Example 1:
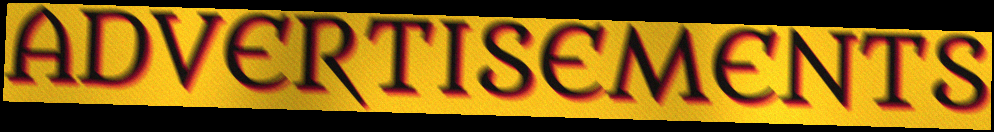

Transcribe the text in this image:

ADVERTISEMENTS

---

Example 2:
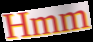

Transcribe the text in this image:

Hmm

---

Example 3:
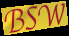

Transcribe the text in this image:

BSW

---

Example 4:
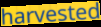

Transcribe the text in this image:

harvested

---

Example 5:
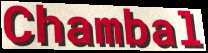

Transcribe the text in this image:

Chambal